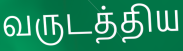
வருடத்திய